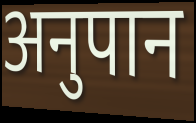
अनुपान